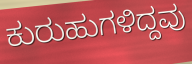
ಕುರುಹುಗಳಿದ್ದವು